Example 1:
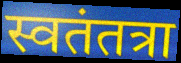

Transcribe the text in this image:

स्वतंतत्रा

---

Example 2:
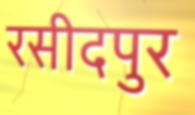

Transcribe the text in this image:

रसीदपुर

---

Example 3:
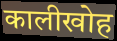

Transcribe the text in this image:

कालीखोह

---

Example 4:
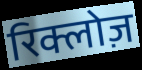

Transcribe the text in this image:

रिक्लोज़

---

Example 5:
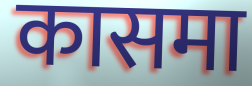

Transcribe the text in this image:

कासमा